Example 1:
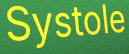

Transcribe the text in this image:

Systole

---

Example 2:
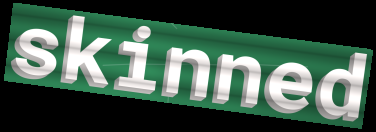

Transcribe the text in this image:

skinned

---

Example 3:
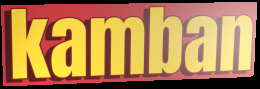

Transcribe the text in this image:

kamban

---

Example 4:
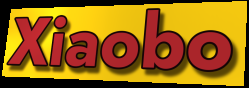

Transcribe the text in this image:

Xiaobo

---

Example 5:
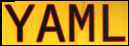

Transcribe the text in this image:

YAML